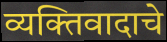
व्यक्तिवादाचे